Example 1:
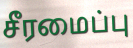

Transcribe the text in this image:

சீரமைப்பு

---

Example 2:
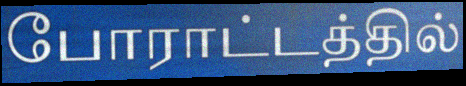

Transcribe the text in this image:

போராட்டத்தில்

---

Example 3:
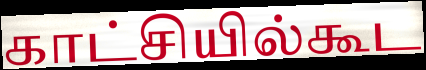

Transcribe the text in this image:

காட்சியில்கூட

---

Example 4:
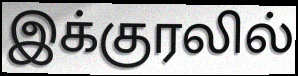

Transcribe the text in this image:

இக்குரலில்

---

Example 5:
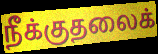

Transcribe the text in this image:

நீக்குதலைக்